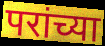
परांच्या